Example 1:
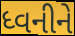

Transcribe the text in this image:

ધ્વનીને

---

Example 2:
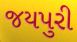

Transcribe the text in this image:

જયપુરી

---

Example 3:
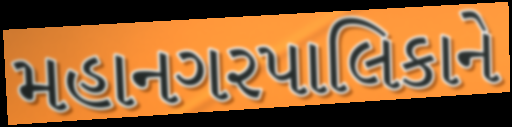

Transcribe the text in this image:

મહાનગરપાલિકાને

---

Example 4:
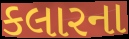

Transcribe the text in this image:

કલારના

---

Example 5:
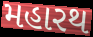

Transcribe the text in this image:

મહારથ